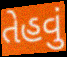
તેહવું